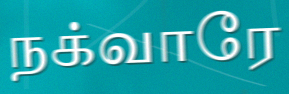
நக்வாரே